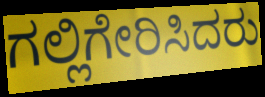
ಗಲ್ಲಿಗೇರಿಸಿದರು